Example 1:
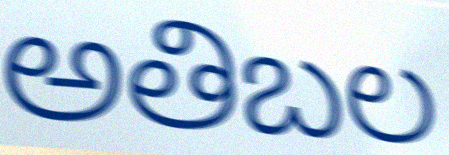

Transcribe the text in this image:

అతిబల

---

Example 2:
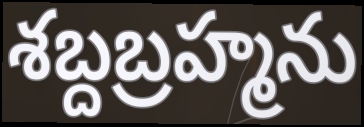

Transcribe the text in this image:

శబ్దబ్రహ్మను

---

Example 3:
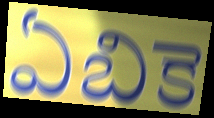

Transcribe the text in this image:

ఏబికె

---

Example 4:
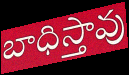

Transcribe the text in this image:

బాధిస్తావు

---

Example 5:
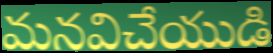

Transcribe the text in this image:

మనవిచేయుడి